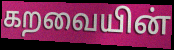
கறவையின்